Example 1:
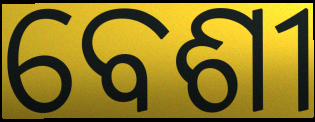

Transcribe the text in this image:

ବେଶୀ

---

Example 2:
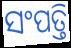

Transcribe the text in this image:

ସଂପତ୍ତି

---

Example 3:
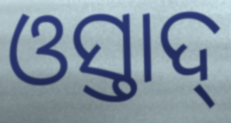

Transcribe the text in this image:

ଓସ୍ତାଦ୍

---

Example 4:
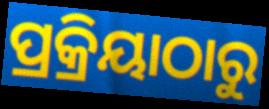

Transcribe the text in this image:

ପ୍ରକ୍ରିୟାଠାରୁ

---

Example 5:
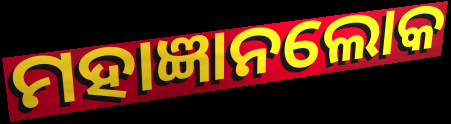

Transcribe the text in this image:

ମହାଜ୍ଞାନଲୋକ